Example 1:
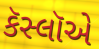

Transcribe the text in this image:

કૅસ્લૉએ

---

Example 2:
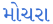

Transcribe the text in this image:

મોચરા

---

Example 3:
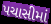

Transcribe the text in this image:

પચાસીમાં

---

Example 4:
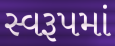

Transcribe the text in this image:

સ્વરૂપમાં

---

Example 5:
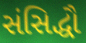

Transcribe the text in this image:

સંસિદ્ધૌ